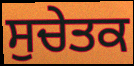
ਸੁਚੇਤਕ